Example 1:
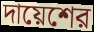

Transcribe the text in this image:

দায়েশের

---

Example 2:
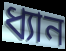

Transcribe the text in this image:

ধ্যান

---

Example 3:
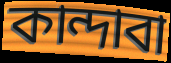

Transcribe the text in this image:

কান্দাবা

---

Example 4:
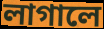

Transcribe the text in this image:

লাগালে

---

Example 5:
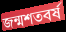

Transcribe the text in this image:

জন্মশতবর্ষ